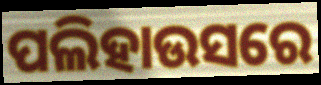
ପଲିହାଉସରେ